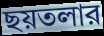
ছয়তলার